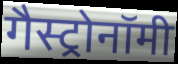
गैस्ट्रोनॉमी